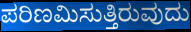
ಪರಿಣಮಿಸುತ್ತಿರುವುದು